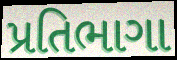
પ્રતિભાગા